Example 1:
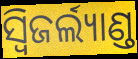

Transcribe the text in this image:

ସ୍ୱିଜର୍ଲ୍ୟାଣ୍ଡ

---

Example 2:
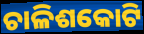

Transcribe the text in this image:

ଚାଳିଶକୋଟି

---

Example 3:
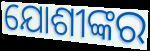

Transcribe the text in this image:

ଯୋଶୀଙ୍କର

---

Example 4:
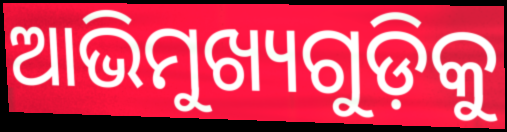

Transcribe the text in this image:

ଆଭିମୁଖ୍ୟଗୁଡ଼ିକୁ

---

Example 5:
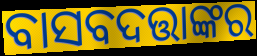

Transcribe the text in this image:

ବାସବଦତ୍ତାଙ୍କର